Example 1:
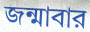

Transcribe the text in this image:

জন্মাবার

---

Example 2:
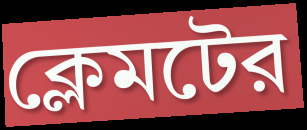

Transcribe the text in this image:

ক্লেমটের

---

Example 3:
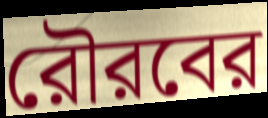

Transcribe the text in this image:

রৌরবের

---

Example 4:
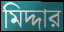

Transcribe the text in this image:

মিদ্দার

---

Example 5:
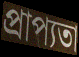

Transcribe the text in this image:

প্রাপ্যতা